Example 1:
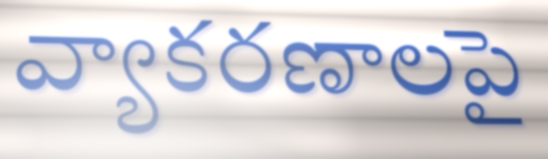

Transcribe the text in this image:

వ్యాకరణాలపై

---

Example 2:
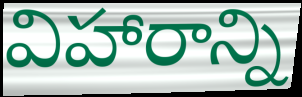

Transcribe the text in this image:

విహారాన్ని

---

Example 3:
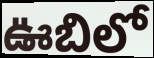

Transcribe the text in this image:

ఊబిలో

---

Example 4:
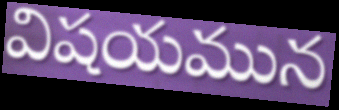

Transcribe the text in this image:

విషయమున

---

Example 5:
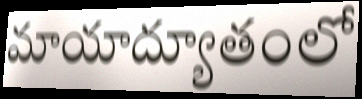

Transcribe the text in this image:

మాయాద్యూతంలో